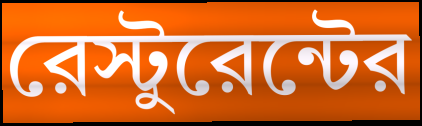
রেস্টুরেন্টের